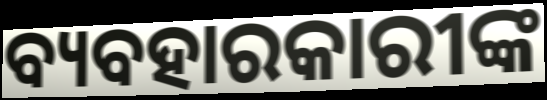
ବ୍ୟବହାରକାରୀଙ୍କ